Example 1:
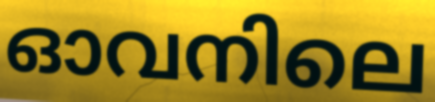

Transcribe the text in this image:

ഓവനിലെ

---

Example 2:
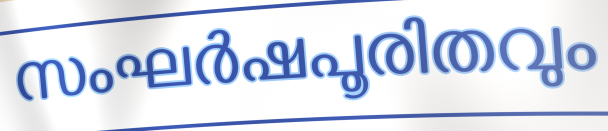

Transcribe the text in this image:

സംഘർഷപൂരിതവും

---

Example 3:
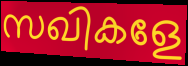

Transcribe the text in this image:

സഖികളേ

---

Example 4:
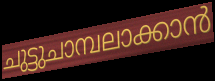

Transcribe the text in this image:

ചുട്ടുചാമ്പലാക്കാൻ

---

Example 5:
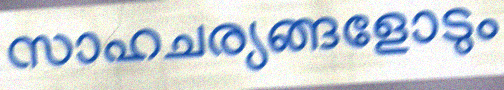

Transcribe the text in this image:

സാഹചര്യങ്ങളോടും